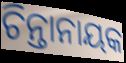
ଚିନ୍ତାନାୟକ